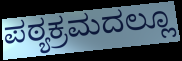
ಪಠ್ಯಕ್ರಮದಲ್ಲೂ